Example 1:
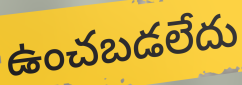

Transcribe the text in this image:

ఉంచబడలేదు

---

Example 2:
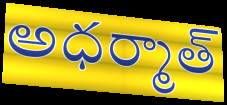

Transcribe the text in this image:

అధర్మాత్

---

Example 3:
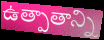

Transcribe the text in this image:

ఉత్పాతాన్ని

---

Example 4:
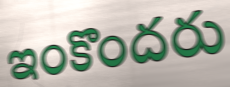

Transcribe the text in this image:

ఇంకొందరు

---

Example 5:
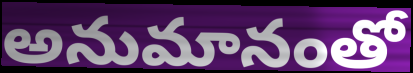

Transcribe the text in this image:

అనుమానంతో